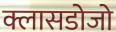
क्लासडोजो